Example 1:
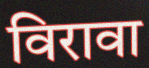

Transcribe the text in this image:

विरावा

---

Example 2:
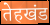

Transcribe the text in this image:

तेहखंड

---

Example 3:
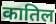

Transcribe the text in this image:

कातिल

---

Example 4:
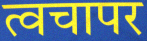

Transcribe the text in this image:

त्वचापर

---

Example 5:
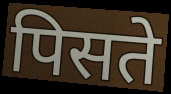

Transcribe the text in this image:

पिसते